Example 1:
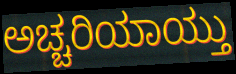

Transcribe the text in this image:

ಅಚ್ಚರಿಯಾಯ್ತು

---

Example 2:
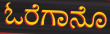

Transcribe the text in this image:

ಓರೆಗಾನೊ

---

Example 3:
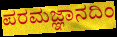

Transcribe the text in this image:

ಪರಮಜ್ಞಾನದಿಂ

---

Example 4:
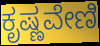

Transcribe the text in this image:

ಕೃಷ್ಣವೇಣಿ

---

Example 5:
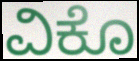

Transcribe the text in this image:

ವಿಕೊ